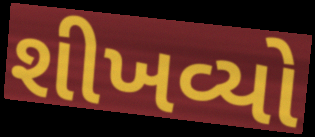
શીખવ્યો